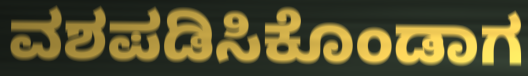
ವಶಪಡಿಸಿಕೊಂಡಾಗ